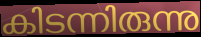
കിടന്നിരുന്നു